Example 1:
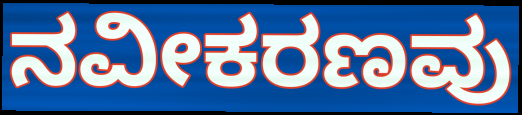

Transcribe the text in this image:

ನವೀಕರಣವು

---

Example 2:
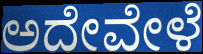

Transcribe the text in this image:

ಅದೇವೇಳೆ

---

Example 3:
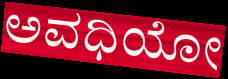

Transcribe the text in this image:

ಅವಧಿಯೋ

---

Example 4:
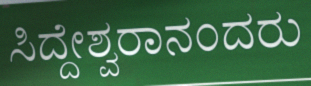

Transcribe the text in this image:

ಸಿದ್ದೇಶ್ವರಾನಂದರು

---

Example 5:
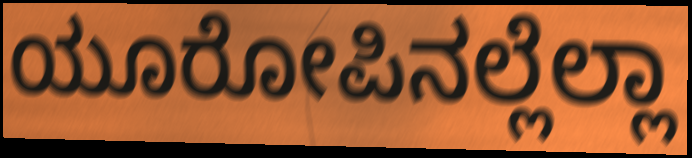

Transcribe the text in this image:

ಯೂರೋಪಿನಲ್ಲೆಲ್ಲಾ